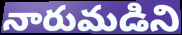
నారుమడిని